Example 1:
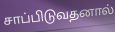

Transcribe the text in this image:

சாப்பிடுவதனால்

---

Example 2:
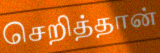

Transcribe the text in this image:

செறித்தான்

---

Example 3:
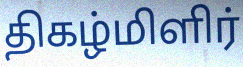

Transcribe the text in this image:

திகழ்மிளிர்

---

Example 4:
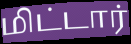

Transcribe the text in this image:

மிட்டார்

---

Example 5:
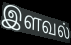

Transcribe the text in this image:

இளவல்